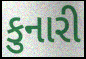
કુનારી